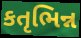
કતૃભિન્ન